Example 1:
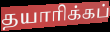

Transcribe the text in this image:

தயாரிக்கப்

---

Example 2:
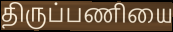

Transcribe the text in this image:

திருப்பணியை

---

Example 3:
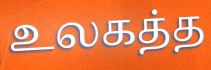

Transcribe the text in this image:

உலகத்த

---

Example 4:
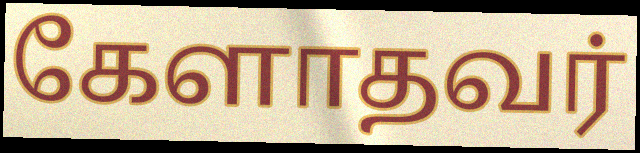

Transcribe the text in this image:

கேளாதவர்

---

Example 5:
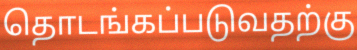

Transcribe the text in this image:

தொடங்கப்படுவதற்கு